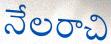
నేలరాచి